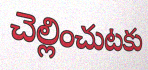
చెల్లించుటకు